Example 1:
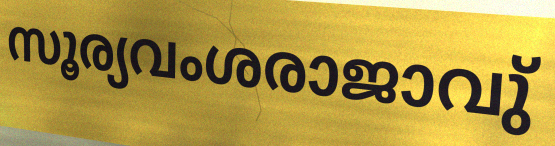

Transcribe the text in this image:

സൂര്യവംശരാജാവു്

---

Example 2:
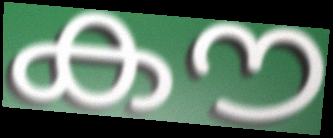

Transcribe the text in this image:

കൗ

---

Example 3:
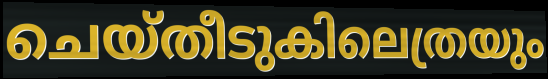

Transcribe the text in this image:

ചെയ്തീടുകിലെത്രയും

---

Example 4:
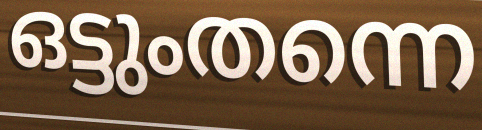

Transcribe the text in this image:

ഒട്ടുംതന്നെ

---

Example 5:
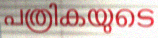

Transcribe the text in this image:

പത്രികയുടെ